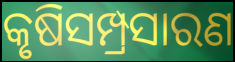
କୃଷିସମ୍ପ୍ରସାରଣ